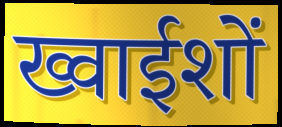
ख्वाईशों